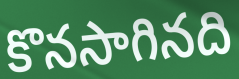
కొనసాగినది